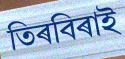
তিৰবিৰাই